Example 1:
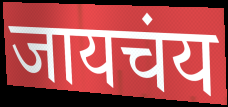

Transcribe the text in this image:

जायचंय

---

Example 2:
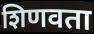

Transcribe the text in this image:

शिणवता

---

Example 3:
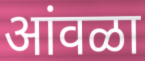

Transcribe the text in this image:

आंवळा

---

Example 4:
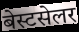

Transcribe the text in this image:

बेस्टसेलर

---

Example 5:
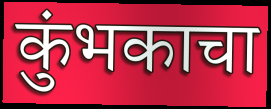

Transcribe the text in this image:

कुंभकाचा